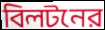
বিলটনের